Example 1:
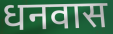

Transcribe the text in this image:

धनवास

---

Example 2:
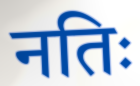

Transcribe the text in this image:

नतिः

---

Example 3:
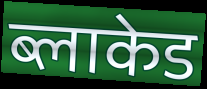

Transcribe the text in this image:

ब्लाकेड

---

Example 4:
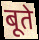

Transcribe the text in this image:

बूते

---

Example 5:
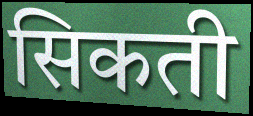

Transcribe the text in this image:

सिकती